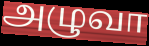
அழுவா